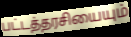
பட்டத்தரசியையும்